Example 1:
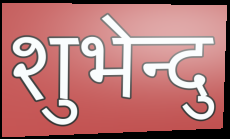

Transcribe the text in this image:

शुभेन्दु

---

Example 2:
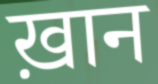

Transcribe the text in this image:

ख़ान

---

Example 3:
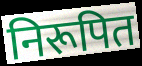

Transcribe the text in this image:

निरूपित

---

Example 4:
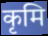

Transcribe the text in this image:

कृमि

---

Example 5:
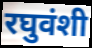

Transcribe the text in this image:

रघुवंशी